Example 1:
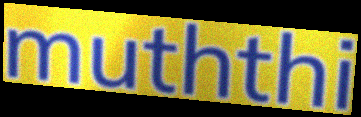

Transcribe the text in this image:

muththi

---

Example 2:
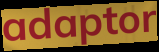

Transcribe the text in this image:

adaptor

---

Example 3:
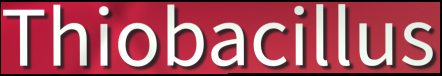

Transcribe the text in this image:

Thiobacillus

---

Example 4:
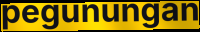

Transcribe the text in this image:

pegunungan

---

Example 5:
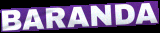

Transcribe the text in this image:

BARANDA